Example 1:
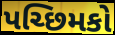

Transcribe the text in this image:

પચ્છિમકો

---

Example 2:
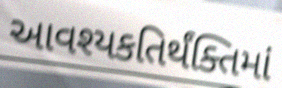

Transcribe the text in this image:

આવશ્યકતિર્થંક્તિમાં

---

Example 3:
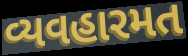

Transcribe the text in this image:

વ્યવહારમત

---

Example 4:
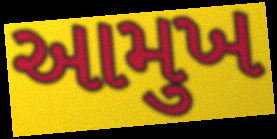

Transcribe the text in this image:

આમુખ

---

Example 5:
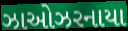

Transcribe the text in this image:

ઝાઓઝરનાયા